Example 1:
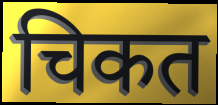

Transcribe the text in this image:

चिकत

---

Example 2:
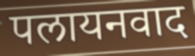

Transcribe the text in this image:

पलायनवाद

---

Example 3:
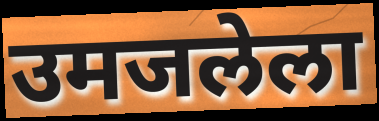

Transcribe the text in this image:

उमजलेला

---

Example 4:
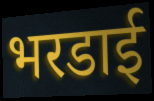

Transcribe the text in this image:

भरडाई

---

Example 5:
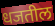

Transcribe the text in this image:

धजतील